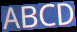
ABCD